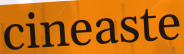
cineaste